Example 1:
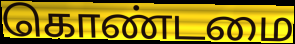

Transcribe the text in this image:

கொண்டமை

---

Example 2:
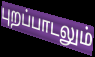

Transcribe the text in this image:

புறப்பாடலும்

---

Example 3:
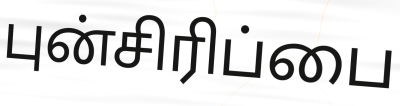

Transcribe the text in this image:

புன்சிரிப்பை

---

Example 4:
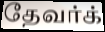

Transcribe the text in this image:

தேவர்க்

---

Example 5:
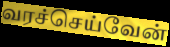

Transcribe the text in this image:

வரச்செய்வேன்